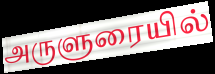
அருளுரையில்